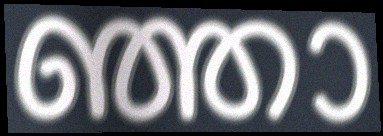
ഞ്ഞാ